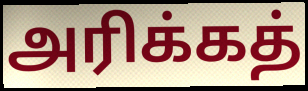
அரிக்கத்